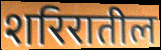
शरिरातील